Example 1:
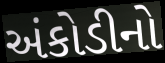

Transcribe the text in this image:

અંકોડીનો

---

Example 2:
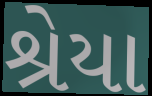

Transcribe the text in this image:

શ્રેયા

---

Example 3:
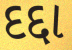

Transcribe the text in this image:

દદ્દા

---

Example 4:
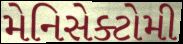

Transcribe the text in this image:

મેનિસેક્ટોમી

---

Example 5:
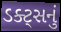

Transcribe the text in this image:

ડક્ટ્સનું